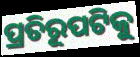
ପ୍ରତିରୂପଟିକୁ